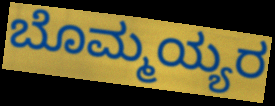
ಬೊಮ್ಮಯ್ಯರ